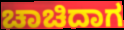
ಚಾಚಿದಾಗ